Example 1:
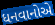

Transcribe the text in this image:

ધનવાનોએ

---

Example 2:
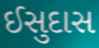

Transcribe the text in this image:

ઈસુદાસ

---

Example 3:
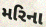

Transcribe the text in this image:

મરિના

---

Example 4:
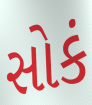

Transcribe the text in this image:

સોકં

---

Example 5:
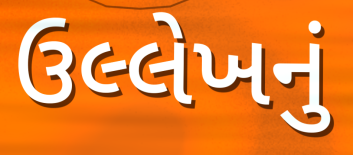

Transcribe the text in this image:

ઉલ્લેખનું